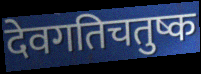
देवगतिचतुष्क